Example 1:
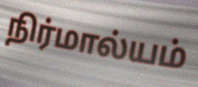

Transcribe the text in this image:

நிர்மால்யம்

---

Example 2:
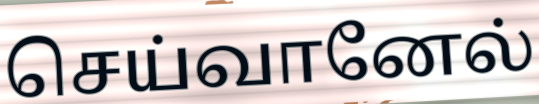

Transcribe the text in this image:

செய்வானேல்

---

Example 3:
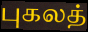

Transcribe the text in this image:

புகலத்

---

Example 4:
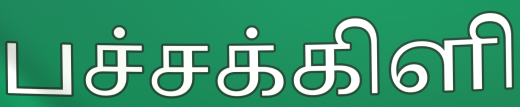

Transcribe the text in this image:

பச்சக்கிளி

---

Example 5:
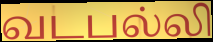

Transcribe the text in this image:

வடபல்லி